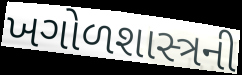
ખગોળશાસ્ત્રની